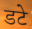
डटे